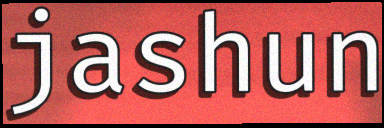
jashun